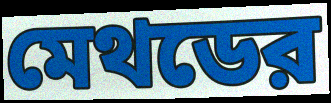
মেথডের